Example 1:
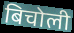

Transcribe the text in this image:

बिचोली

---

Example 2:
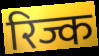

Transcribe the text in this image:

रिज्क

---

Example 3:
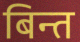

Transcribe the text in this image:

बिन्त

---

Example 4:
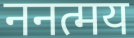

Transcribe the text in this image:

ननत्मय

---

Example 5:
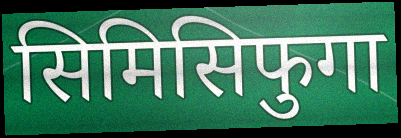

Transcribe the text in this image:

सिमिसिफुगा